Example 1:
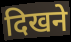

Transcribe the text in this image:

दिखने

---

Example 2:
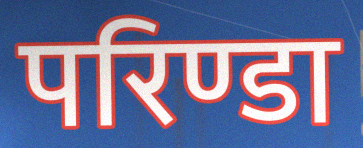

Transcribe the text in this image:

परिण्डा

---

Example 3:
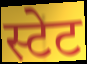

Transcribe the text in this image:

स्टेट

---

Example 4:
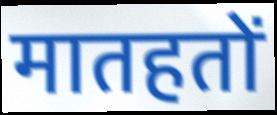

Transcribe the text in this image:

मातहतों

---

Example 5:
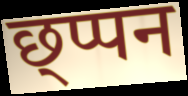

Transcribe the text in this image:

छ्प्पन